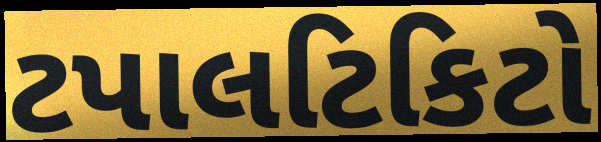
ટપાલટિકિટો